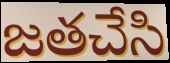
జతచేసి